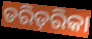
ଡରିଡ଼ରିକା